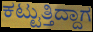
ಕಟ್ಟುತ್ತಿದ್ದಾಗ